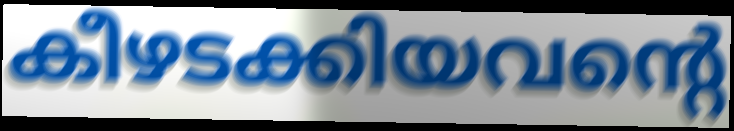
കീഴടക്കിയവന്റെ